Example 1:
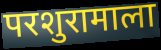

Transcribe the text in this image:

परशुरामाला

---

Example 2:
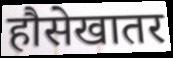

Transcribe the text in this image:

हौसेखातर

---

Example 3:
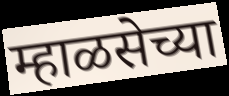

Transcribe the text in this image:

म्हाळसेच्या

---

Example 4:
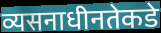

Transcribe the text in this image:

व्यसनाधीनतेकडे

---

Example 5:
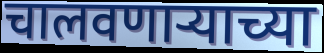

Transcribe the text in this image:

चालवणार्‍याच्या